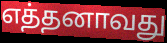
எத்தனாவது